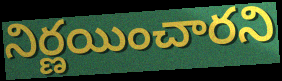
నిర్ణయించారని